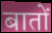
बातों